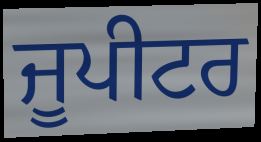
ਜੂਪੀਟਰ